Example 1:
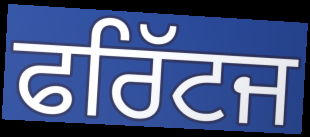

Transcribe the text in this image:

ਫਰਿੱਟਜ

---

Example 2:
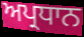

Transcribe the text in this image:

ਅਪ੍ਰਧਾਨ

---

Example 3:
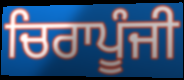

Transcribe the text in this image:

ਚਿਰਾਪੂੰਜੀ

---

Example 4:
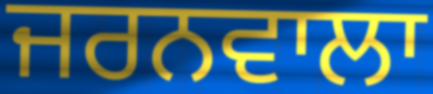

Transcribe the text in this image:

ਜਰਨਵਾਲਾ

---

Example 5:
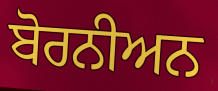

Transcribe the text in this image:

ਬੋਰਨੀਅਨ